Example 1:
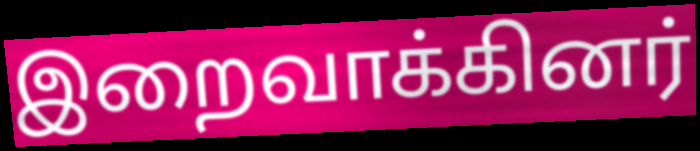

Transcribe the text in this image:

இறைவாக்கினர்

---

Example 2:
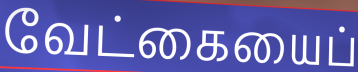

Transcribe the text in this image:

வேட்கையைப்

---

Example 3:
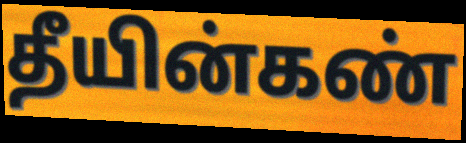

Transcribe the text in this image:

தீயின்கண்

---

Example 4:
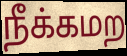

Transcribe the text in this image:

நீக்கமற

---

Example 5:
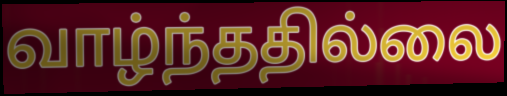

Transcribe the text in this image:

வாழ்ந்ததில்லை